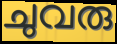
ചുവരു